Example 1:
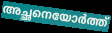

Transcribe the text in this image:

അച്ഛനെയോർത്ത്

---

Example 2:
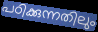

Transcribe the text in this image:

പഠിക്കുന്നതിലും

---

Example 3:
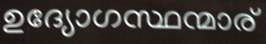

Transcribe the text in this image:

ഉദ്യോഗസ്ഥന്മാര്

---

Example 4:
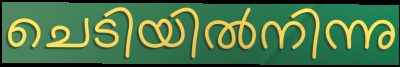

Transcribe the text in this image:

ചെടിയിൽനിന്നു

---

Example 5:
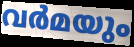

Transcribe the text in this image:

വർമയും